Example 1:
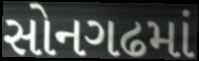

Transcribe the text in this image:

સોનગઢમાં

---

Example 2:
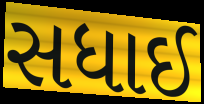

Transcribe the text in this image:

સધાઈ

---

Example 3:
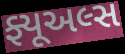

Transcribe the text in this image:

ફ્યૂઅલ્સ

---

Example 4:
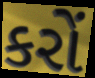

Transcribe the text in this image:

કરોં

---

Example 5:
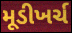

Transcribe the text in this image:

મૂડીખર્ચ